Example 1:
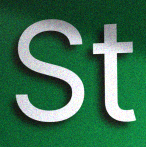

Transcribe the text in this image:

St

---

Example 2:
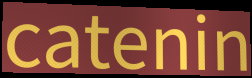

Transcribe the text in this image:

catenin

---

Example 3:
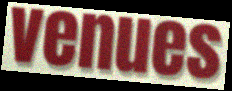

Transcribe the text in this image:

venues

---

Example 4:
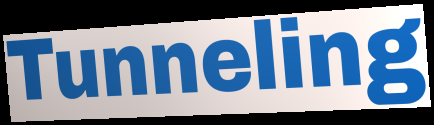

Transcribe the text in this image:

Tunneling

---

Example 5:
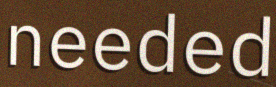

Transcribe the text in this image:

needed